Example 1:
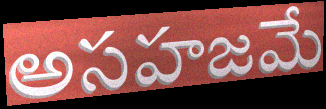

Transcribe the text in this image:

అసహజమే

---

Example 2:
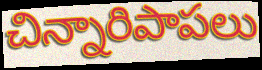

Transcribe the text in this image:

చిన్నారిపాపలు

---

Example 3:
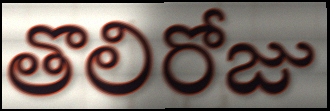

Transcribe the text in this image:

తొలిరోజు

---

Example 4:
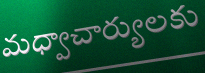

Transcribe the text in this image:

మధ్వాచార్యులకు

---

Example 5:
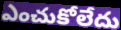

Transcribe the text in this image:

ఎంచుకోలేదు